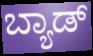
ಬ್ಯಾಡ್